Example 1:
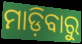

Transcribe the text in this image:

ମାଡ଼ିବାରୁ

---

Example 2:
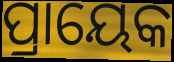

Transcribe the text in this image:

ପ୍ରାୟେକ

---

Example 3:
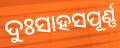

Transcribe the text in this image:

ଦୁଃସାହସପୂର୍ଣ୍ଣ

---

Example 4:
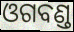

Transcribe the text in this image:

ଓଗବଣ୍ଡ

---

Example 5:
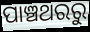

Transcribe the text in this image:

ପାଞ୍ଚଥରରୁ